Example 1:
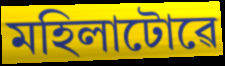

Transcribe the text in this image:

মহিলাটোৱে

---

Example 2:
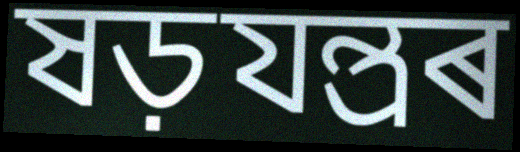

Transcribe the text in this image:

ষড়যন্ত্ৰৰ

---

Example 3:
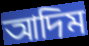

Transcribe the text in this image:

আদিম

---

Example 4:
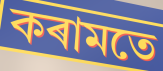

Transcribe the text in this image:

কৰামতে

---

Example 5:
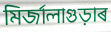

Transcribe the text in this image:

মিৰ্জালাগুড়াৰ